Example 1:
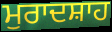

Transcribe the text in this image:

ਮੁਰਾਦਸ਼ਾਹ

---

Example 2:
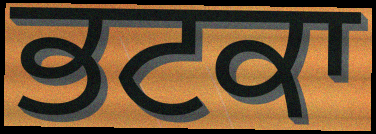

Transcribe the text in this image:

ਭਟਕਾ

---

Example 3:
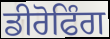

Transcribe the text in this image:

ਡੀਰੋਫਿੰਗ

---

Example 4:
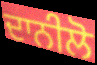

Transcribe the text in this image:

ਦਾਨੀਲੋ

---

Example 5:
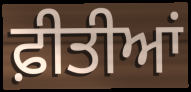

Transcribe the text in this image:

ਫ਼ੀਤੀਆਂ